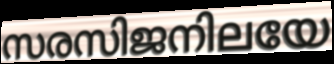
സരസിജനിലയേ